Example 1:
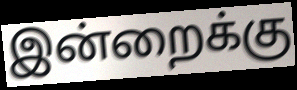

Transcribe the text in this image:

இன்றைக்கு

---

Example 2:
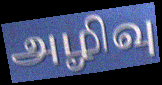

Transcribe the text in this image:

அழிவு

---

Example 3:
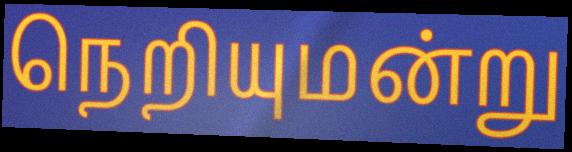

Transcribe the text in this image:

நெறியுமன்று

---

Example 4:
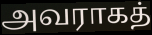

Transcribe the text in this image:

அவராகத்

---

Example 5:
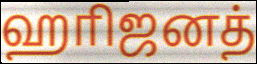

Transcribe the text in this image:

ஹரிஜனத்